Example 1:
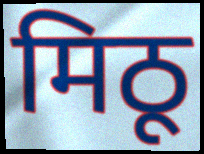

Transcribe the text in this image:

मिठू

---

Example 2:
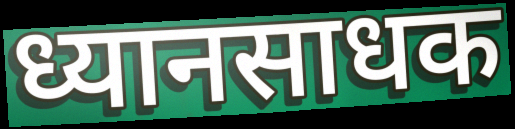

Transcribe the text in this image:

ध्यानसाधक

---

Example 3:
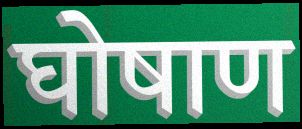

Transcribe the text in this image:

घोषाण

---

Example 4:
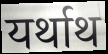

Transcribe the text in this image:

यर्थाथ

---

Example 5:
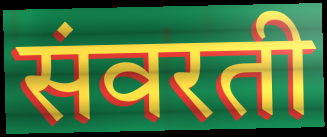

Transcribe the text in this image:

संवरती